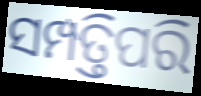
ସମ୍ପତ୍ତିପରି